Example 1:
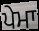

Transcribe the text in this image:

ਪੇਮਾ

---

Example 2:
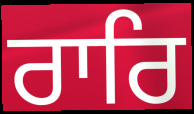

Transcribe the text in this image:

ਰਾਰਿ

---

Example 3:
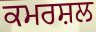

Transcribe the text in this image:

ਕਮਰਸ਼ਲ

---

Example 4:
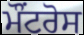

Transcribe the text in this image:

ਮੌਂਟਰੋਸ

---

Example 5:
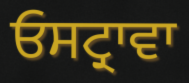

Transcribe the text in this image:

ਓਸਟ੍ਰਾਵਾ